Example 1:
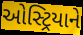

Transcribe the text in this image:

ઓસ્ટ્રિયાને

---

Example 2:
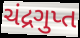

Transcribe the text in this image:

ચંદ્રગુપ્ત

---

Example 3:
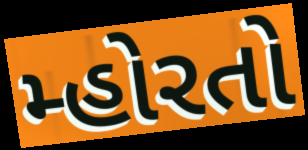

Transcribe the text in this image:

મ્હોરતો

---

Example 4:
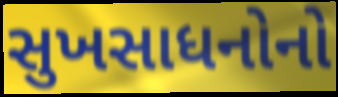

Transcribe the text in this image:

સુખસાધનોનો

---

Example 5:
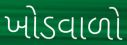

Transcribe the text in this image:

ખોડવાળો